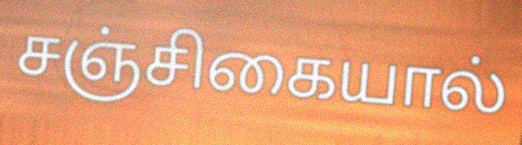
சஞ்சிகையால்